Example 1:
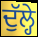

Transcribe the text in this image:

ਦੁੱਲ੍ਹੇ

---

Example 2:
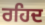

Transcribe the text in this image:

ਰਹਿਦ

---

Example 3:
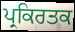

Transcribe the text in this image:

ਪ੍ਰਕਿਰਤਕ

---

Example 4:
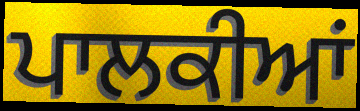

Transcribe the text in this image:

ਪਾਲਕੀਆਂ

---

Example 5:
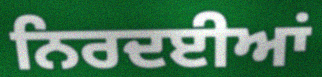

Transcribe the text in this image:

ਨਿਰਦਈਆਂ